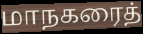
மாநகரைத்